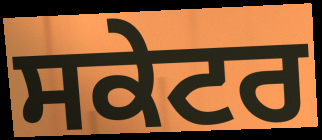
ਸਕੇਟਰ